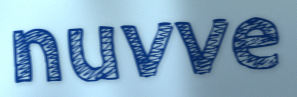
nuvve